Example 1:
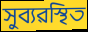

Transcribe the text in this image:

সুব্যৱস্থিত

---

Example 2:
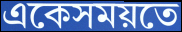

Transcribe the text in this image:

একেসময়তে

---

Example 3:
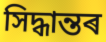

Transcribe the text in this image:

সিদ্ধান্তৰ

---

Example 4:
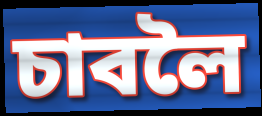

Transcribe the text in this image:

চাবলৈ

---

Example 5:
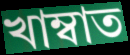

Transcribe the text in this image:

খাম্বাত